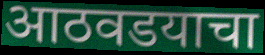
आठवडयाचा